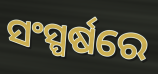
ସଂସ୍ପର୍ଷରେ